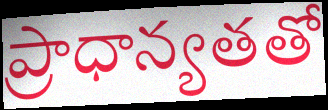
ప్రాధాన్యతతో